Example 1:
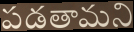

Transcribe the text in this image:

పడతామని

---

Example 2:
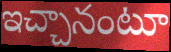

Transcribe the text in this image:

ఇచ్చానంటూ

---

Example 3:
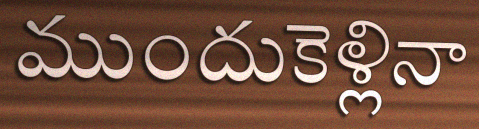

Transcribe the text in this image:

ముందుకెళ్లినా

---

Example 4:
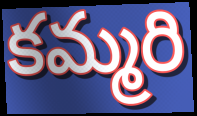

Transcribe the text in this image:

కమ్మరి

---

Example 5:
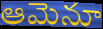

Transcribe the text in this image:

ఆమెనూ